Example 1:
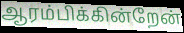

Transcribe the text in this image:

ஆரம்பிக்கின்றேன்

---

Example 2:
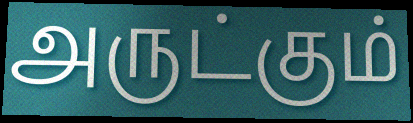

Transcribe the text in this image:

அருட்கும்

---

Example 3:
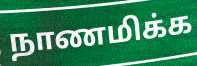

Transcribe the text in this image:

நாணமிக்க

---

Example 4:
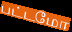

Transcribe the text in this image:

பட்டமோ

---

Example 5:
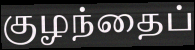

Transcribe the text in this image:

குழந்தைப்